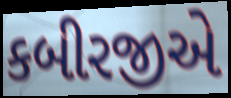
કબીરજીએ